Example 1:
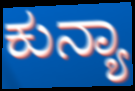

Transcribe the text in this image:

ಕುನ್ಯಾ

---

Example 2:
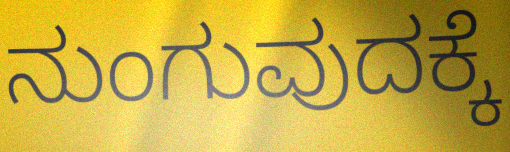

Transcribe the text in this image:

ನುಂಗುವುದಕ್ಕೆ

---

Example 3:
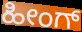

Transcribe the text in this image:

ಹೀಂಗ್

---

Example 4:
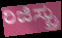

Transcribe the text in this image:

ರಿಜಿಸ್ಟ್ರು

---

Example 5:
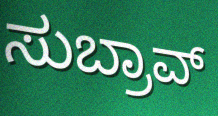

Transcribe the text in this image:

ಸುಬ್ರಾವ್